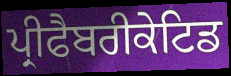
ਪ੍ਰੀਫੈਬਰੀਕੇਟਿਡ